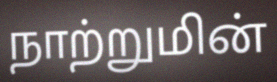
நாற்றுமின்